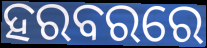
ହରବରରେ